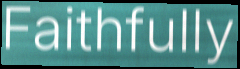
Faithfully